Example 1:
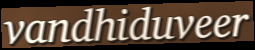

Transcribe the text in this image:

vandhiduveer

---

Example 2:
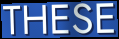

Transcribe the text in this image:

THESE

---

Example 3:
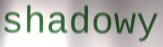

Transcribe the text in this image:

shadowy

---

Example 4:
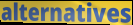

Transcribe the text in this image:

alternatives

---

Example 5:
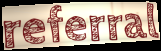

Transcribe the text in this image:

referral